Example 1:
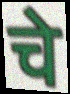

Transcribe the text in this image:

चे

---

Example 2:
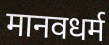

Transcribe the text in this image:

मानवधर्म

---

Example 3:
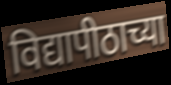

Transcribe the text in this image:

विद्यापीठाच्या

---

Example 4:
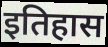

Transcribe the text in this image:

इतिहास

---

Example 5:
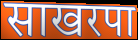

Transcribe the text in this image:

साखरपा